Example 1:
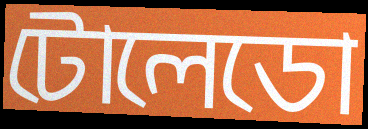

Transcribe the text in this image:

টোলেডো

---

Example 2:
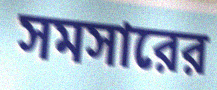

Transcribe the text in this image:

সমসারের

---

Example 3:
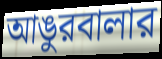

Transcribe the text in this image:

আঙুরবালার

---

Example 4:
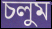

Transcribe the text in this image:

চলুম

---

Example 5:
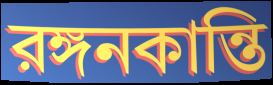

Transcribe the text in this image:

রঙ্গনকান্তি